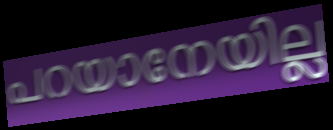
പറയാനേയില്ല